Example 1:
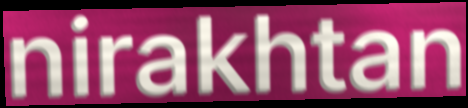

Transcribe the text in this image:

nirakhtan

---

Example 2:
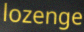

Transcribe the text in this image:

lozenge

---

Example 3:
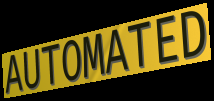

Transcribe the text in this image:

AUTOMATED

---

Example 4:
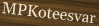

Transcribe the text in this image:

MPKoteesvar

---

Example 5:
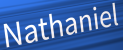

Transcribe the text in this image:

Nathaniel